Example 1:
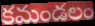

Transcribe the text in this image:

కమండలం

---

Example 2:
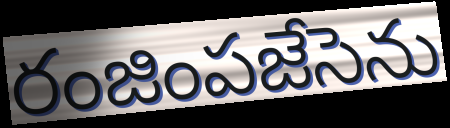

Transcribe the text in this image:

రంజింపజేసెను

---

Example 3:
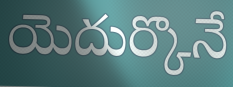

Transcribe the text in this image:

యెదుర్కొనే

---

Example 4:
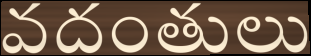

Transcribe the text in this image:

వదంతులు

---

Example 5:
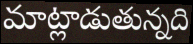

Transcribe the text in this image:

మాట్లాడుతున్నది